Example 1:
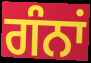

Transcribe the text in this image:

ਗੰਨਾਂ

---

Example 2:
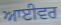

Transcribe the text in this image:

ਆਈਵਰ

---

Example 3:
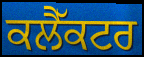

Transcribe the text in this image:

ਕਲੈੱਕਟਰ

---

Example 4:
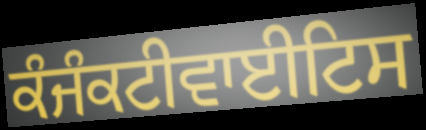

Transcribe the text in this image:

ਕੰਜੰਕਟੀਵਾਈਟਿਸ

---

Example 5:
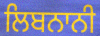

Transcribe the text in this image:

ਲਿਬਨਾਨੀ